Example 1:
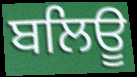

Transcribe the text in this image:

ਬਲਿਊ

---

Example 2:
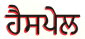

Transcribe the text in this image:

ਹੈਸਪੇਲ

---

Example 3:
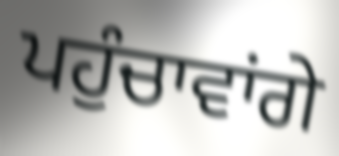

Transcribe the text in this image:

ਪਹੁੰਚਾਵਾਂਗੇ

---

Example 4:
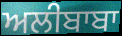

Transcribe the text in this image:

ਅਲੀਬਾਬਾ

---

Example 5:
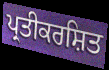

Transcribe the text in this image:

ਪ੍ਰਤੀਕਰਸ਼ਿਤ